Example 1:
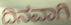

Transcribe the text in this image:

ದಿನವಾಗಿ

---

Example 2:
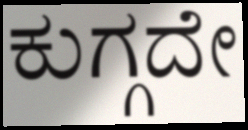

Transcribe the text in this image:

ಕುಗ್ಗದೇ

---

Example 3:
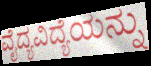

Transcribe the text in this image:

ವೈದ್ಯವಿದ್ಯೆಯನ್ನು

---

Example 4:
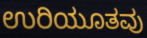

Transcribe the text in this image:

ಉರಿಯೂತವು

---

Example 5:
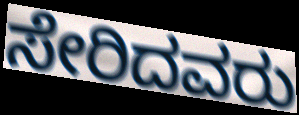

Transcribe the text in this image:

ಸೇರಿದವರು